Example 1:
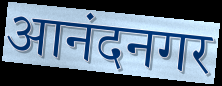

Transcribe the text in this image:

आनंदनगर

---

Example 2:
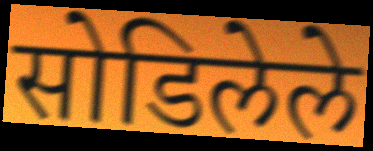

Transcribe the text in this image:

सोडिलेले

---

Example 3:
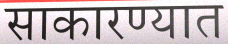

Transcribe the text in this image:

साकारण्यात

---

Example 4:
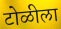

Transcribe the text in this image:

टोळीला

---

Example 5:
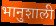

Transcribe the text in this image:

भानुशाली